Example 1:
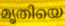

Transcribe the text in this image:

മൃതിയെ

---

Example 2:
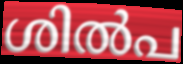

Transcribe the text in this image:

ശിൽപ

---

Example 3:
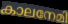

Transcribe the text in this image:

കാലനേമി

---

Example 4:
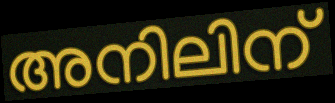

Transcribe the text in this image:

അനിലിന്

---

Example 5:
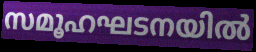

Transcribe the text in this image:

സമൂഹഘടനയിൽ